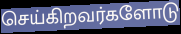
செய்கிறவர்களோடு